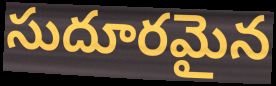
సుదూరమైన